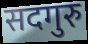
सदगुरु